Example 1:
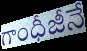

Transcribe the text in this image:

గాంధీజీనే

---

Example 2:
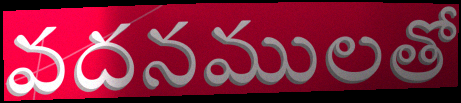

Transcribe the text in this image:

వదనములతో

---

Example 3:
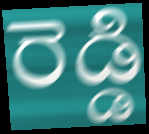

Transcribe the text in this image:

రెడ్డి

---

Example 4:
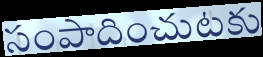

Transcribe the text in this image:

సంపాదించుటకు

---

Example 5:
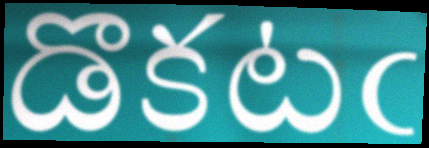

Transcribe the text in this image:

డొకటఁ